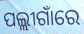
ପଲ୍ଲୀଗାଁରେ